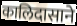
कालिदासाने